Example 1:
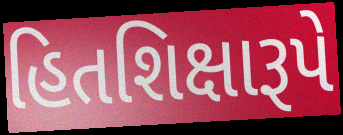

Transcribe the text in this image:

હિતશિક્ષારૂપે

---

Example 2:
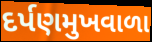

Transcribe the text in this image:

દર્પણમુખવાળા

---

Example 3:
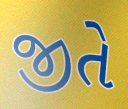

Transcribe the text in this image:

જીતે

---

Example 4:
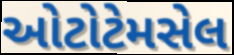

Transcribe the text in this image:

ઓટોટેમસેલ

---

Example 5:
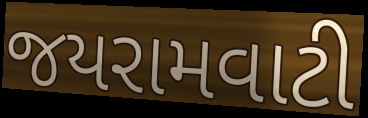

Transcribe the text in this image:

જયરામવાટી